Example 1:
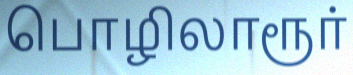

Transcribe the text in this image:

பொழிலாரூர்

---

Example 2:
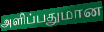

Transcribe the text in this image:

அளிப்பதுமான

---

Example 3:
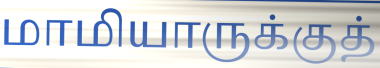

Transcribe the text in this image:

மாமியாருக்குத்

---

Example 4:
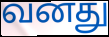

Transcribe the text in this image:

வனது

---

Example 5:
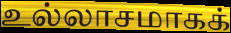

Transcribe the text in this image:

உல்லாசமாகக்